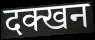
दक्खन